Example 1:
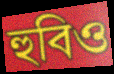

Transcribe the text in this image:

হুবিও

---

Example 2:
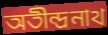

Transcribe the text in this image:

অতীন্দ্রনাথ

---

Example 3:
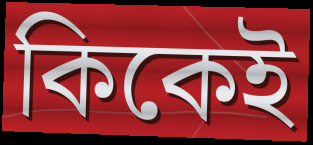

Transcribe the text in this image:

কিকেই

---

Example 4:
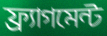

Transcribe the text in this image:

ফ্র্যাগমেন্ট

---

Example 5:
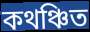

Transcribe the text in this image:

কথঞ্চিত